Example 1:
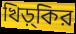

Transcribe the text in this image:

খিড়্‌কির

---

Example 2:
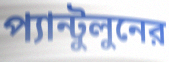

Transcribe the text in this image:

প্যান্টুলুনের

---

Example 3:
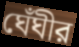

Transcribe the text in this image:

ঘেঁঘীর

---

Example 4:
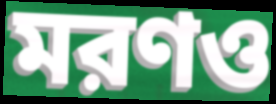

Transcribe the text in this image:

মরণও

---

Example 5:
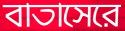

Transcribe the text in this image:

বাতাসেরে